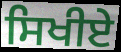
ਸਿਖੀਏ